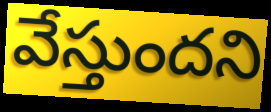
వేస్తుందని